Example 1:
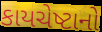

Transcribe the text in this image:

કાયચેષ્ટાનો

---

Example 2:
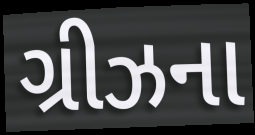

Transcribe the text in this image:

ગ્રીઝના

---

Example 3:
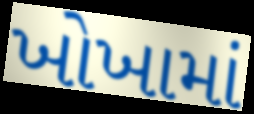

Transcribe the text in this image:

ખોખામાં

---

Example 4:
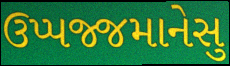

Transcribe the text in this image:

ઉપ્પજ્જમાનેસુ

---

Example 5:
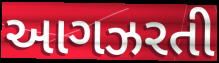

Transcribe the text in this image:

આગઝરતી